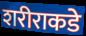
शरीराकडे